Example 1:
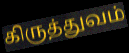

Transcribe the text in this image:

கிருத்துவம்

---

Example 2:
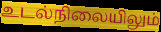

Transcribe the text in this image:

உடல்நிலையிலும்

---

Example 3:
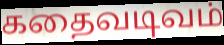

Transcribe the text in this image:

கதைவடிவம்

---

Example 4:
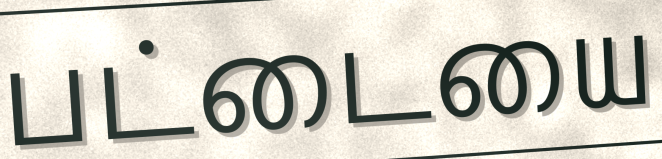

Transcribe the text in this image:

பட்டையை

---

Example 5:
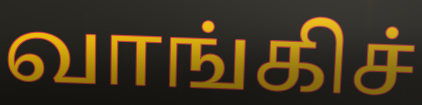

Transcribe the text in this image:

வாங்கிச்